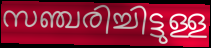
സഞ്ചരിച്ചിട്ടുള്ള